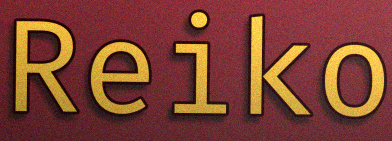
Reiko